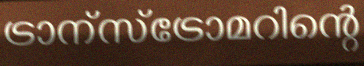
ട്രാന്സ്ട്രോമറിന്റെ